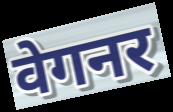
वेगनर